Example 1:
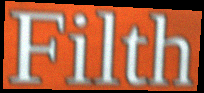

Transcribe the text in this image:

Filth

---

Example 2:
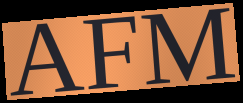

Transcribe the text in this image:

AFM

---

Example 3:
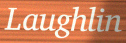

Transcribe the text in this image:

Laughlin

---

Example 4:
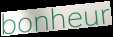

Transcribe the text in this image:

bonheur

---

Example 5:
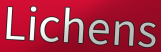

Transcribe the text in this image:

Lichens